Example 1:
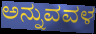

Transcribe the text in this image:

ಅನ್ನುವವಳ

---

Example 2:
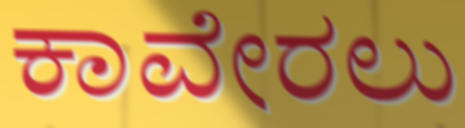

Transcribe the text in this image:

ಕಾವೇರಲು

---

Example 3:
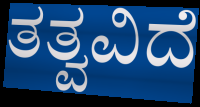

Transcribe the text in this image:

ತತ್ವವಿದೆ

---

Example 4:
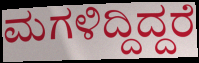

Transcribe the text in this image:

ಮಗಳಿದ್ದಿದ್ದರೆ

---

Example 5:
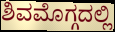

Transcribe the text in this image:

ಶಿವಮೊಗ್ಗದಲ್ಲಿ